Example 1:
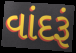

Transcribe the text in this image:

વાંદરૂં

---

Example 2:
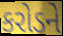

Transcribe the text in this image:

કરોડને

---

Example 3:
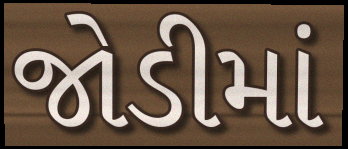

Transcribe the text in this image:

જોડીમાં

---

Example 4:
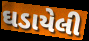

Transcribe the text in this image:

ઘડાયેલી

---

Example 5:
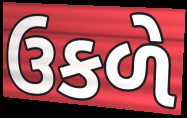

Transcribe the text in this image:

ઉકળે